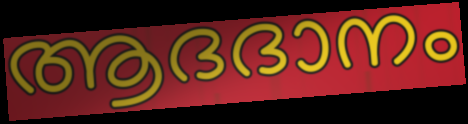
ആദദാനം